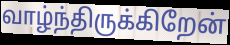
வாழ்ந்திருக்கிறேன்